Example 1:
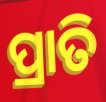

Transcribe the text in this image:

ପ୍ରାତି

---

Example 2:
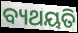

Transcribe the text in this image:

ବ୍ୟଥୟତି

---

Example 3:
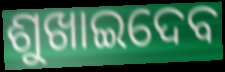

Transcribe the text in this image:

ଶୁଖାଇଦେବ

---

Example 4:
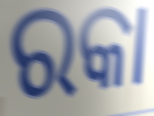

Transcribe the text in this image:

ରକା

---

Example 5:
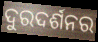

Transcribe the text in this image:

ଦୁରଦର୍ଶନର